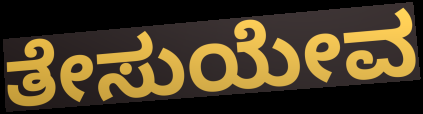
ತೇಸುಯೇವ